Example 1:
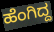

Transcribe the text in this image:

ಹೆಂಗಿದ್ದ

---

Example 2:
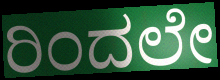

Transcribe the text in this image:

ರಿಂದಲೇ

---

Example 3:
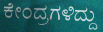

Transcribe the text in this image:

ಕೇಂದ್ರಗಳಿದ್ದು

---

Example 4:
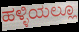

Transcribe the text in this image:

ಹಳ್ಳಿಯಲ್ಲೂ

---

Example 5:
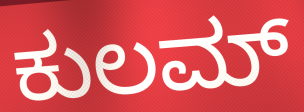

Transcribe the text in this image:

ಕುಲಮ್